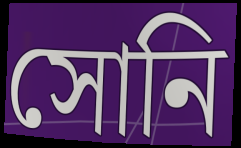
সোনি